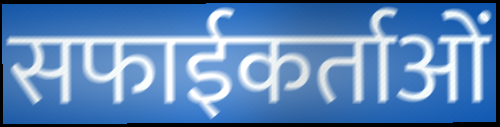
सफाईकर्ताओं